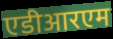
एडीआरएम